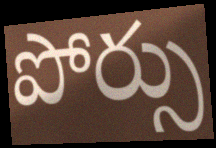
పోర్సు